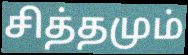
சித்தமும்